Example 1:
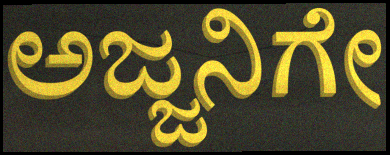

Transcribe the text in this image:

ಅಜ್ಜನಿಗೇ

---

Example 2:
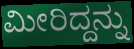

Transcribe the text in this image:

ಮೀರಿದ್ದನ್ನು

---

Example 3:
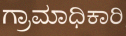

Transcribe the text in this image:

ಗ್ರಾಮಾಧಿಕಾರಿ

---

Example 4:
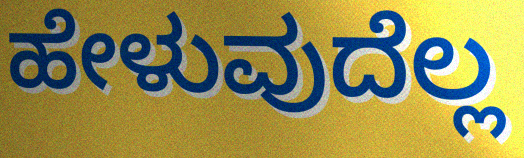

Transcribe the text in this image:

ಹೇಳುವುದೆಲ್ಲ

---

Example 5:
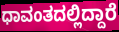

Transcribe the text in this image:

ಧಾವಂತದಲ್ಲಿದ್ದಾರೆ